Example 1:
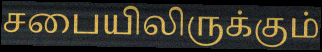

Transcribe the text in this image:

சபையிலிருக்கும்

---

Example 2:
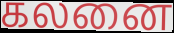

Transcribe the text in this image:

கலனை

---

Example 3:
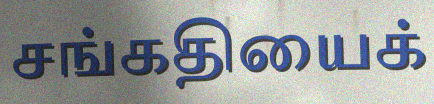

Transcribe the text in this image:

சங்கதியைக்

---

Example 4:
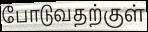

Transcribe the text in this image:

போடுவதற்குள்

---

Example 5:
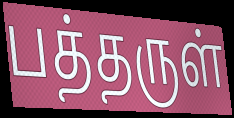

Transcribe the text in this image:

பத்தருள்